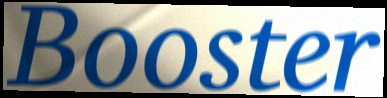
Booster